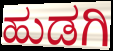
ಹುಡಗಿ